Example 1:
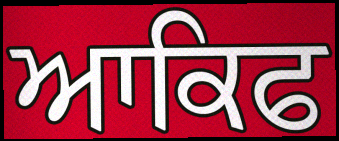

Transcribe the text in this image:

ਆਕਿਫ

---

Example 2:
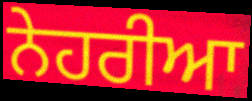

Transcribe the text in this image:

ਨੇਹਰੀਆ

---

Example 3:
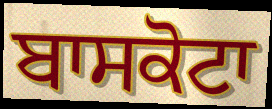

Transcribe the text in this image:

ਬਾਸਕੋਟਾ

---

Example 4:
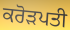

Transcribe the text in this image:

ਕਰੋੜਪਤੀ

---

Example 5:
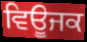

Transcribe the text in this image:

ਵਿਊਜਕ